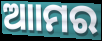
ଆାମର